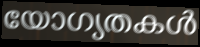
യോഗ്യതകൾ